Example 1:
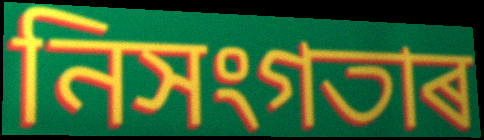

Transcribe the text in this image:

নিসংগতাৰ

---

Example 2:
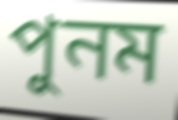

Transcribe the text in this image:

পুনম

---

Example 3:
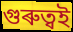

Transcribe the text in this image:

গুৰুত্বই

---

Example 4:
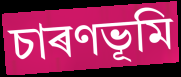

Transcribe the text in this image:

চাৰণভূমি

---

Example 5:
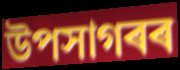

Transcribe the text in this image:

উপসাগৰৰ